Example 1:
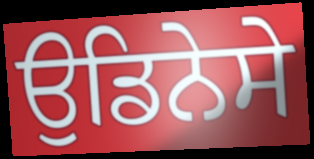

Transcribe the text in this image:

ਉਡਿਨੇਸੇ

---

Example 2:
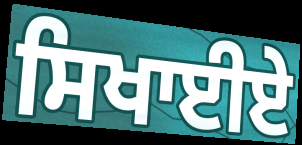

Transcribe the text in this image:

ਸਿਖਾਈਏ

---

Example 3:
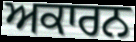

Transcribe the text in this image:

ਅਕਾਰਨ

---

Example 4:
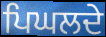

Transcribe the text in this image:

ਪਿਘਲਦੇ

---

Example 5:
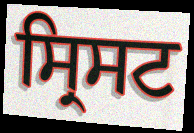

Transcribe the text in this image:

ਸ੍ਰਿਸਟ